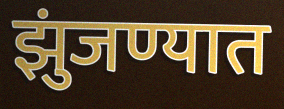
झुंजण्यात